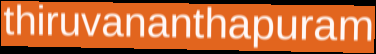
thiruvananthapuram